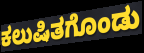
ಕಲುಷಿತಗೊಂಡು